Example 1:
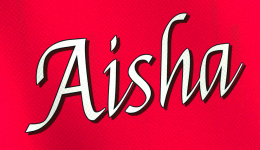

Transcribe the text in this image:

Aisha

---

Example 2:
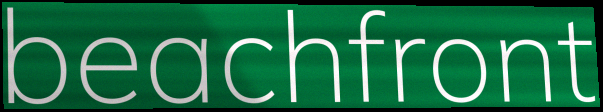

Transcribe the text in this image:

beachfront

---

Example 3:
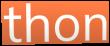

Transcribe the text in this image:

thon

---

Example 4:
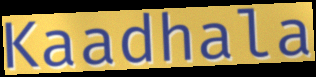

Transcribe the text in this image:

Kaadhala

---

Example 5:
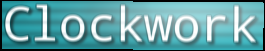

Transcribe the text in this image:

Clockwork